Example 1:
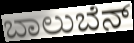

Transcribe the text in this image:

ಬಾಲುಬೆನ್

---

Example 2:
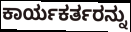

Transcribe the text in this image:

ಕಾರ್ಯಕರ್ತರನ್ನು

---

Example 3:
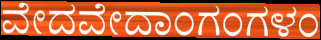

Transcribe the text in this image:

ವೇದವೇದಾಂಗಂಗಳಂ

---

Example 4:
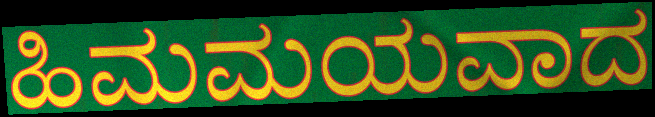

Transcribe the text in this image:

ಹಿಮಮಯವಾದ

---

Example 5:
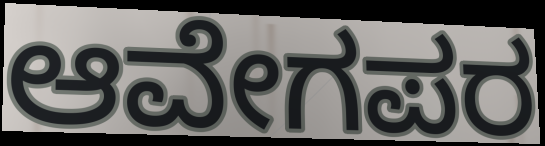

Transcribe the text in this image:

ಆವೇಗಪರ